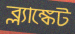
ব্ল্যাঙ্কেট